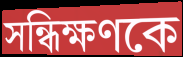
সন্ধিক্ষণকে